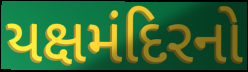
યક્ષમંદિરનો